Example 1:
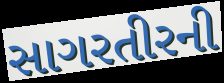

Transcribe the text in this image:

સાગરતીરની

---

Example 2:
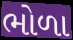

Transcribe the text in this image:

ભોળા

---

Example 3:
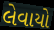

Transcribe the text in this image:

લેવાયો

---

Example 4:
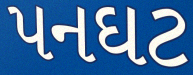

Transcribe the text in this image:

પનઘટ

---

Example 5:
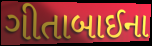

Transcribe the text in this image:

ગીતાબાઈના